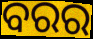
ବରର